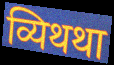
व्यिथथा